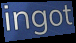
ingot